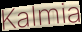
Kalmia